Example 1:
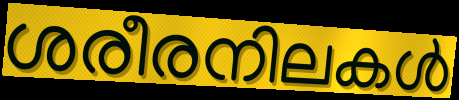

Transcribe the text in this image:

ശരീരനിലകൾ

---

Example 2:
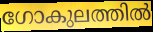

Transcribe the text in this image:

ഗോകുലത്തിൽ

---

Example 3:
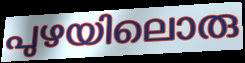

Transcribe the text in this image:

പുഴയിലൊരു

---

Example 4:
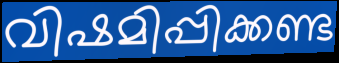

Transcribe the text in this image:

വിഷമിപ്പിക്കണ്ട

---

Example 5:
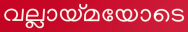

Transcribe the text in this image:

വല്ലായ്മയോടെ